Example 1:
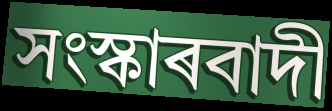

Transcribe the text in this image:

সংস্কাৰবাদী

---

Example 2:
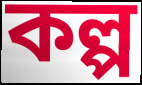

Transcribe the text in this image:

কল্প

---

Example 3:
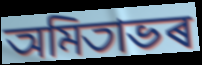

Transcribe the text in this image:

অমিতাভৰ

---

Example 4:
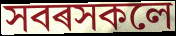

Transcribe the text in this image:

সবৰসকলে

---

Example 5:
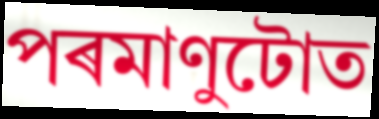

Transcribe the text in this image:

পৰমাণুটোত